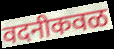
वदनीकवळ